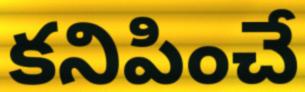
కనిపించే